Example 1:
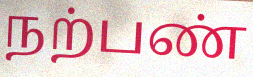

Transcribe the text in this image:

நற்பண்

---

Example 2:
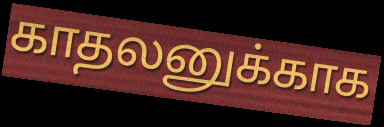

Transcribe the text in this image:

காதலனுக்காக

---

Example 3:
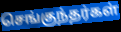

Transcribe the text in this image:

செங்குந்தர்கள்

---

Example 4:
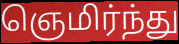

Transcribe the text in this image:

ஞெமிர்ந்து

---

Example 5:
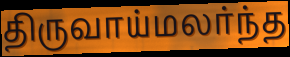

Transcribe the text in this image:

திருவாய்மலர்ந்த